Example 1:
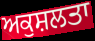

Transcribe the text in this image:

ਅਕੁਸ਼ਲਤਾ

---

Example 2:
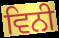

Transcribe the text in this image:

ਵਿਨੀ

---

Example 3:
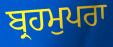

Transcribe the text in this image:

ਬ੍ਰਹਮੁਪਰਾ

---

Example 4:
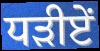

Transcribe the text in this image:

ਧੜੀਏਂ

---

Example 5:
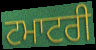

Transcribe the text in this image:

ਟਮਾਟਰੀ